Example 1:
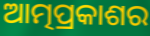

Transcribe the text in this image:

ଆତ୍ମପ୍ରକାଶର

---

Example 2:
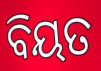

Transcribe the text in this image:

ବିୟତ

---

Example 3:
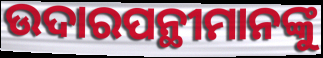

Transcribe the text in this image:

ଉଦାରପନ୍ଥୀମାନଙ୍କୁ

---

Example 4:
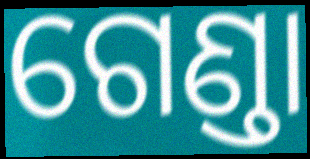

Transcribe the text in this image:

ଗେଣ୍ଡା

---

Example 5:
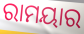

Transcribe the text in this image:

ରାମୟାର